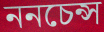
ননচেন্স